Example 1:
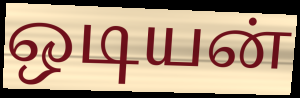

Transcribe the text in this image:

ஒடியன்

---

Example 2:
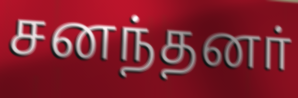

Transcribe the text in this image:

சனந்தனர்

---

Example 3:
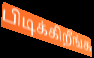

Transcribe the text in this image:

பிடிக்கிறீங்க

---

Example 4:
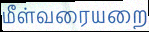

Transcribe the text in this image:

மீள்வரையறை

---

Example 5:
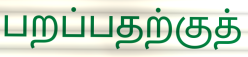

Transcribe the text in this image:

பறப்பதற்குத்